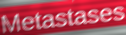
Metastases